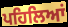
ਪਹਿਲਿਆਂ